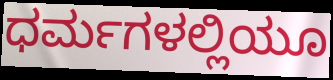
ಧರ್ಮಗಳಲ್ಲಿಯೂ